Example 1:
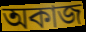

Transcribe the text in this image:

অকাজ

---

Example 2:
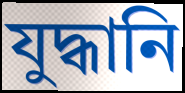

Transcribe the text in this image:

যুদ্ধানি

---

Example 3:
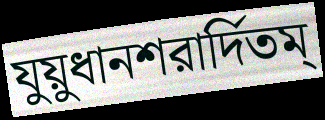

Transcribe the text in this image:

যুয়ুধানশরার্দিতম্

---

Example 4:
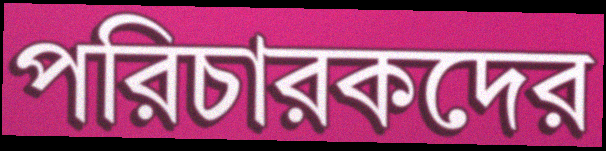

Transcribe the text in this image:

পরিচারকদের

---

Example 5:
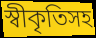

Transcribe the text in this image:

স্বীকৃতিসহ